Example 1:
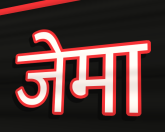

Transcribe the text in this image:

जेमा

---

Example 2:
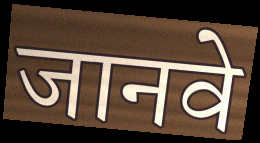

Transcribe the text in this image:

जानवे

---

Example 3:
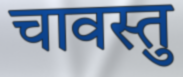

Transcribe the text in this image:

चावस्तु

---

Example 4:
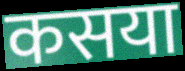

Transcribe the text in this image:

कसया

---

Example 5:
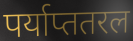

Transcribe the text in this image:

पर्याप्ततरल